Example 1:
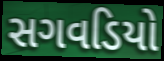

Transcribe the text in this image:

સગવડિયો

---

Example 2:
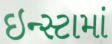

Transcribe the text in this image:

ઇન્સ્ટામાં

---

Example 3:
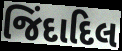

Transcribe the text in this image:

જિંદાદિલ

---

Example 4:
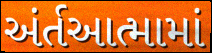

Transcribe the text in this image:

અંર્તઆત્મામાં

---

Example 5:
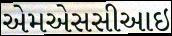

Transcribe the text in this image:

એમએસસીઆઇ